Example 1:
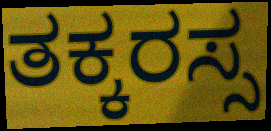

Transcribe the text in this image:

ತಕ್ಕರಸ್ಸ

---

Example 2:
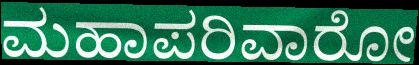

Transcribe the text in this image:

ಮಹಾಪರಿವಾರೋ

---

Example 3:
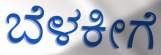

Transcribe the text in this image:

ಬೆಳಕೀಗೆ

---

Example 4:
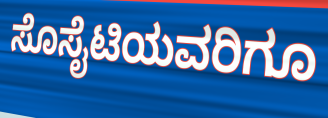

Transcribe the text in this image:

ಸೊಸೈಟಿಯವರಿಗೂ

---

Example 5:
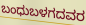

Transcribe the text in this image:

ಬಂಧುಬಳಗದವರ